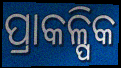
ପ୍ରାକଳ୍ପିକ